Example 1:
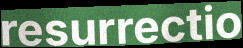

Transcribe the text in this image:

resurrectio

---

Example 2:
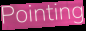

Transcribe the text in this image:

Pointing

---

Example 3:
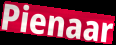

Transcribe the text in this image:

Pienaar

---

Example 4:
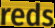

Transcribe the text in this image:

reds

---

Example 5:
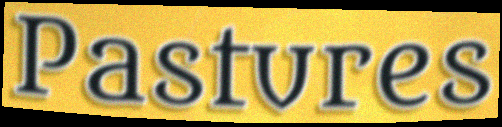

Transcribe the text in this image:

Pastures